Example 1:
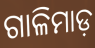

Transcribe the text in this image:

ଗାଳିମାଡ଼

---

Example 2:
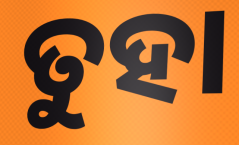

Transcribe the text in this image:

ତୁହା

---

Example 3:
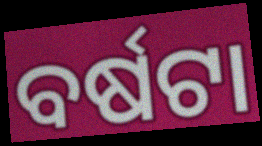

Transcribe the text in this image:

ବର୍ଷଟା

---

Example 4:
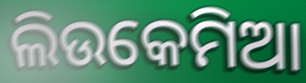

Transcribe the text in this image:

ଲିଉକେମିଆ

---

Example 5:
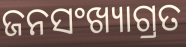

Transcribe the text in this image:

ଜନସଂଖ୍ୟାଗ୍ରତ